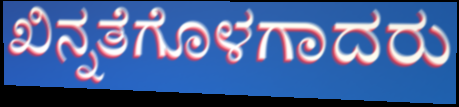
ಖಿನ್ನತೆಗೊಳಗಾದರು